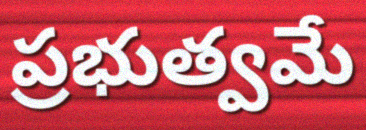
ప్రభుత్వమే